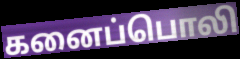
கனைப்பொலி